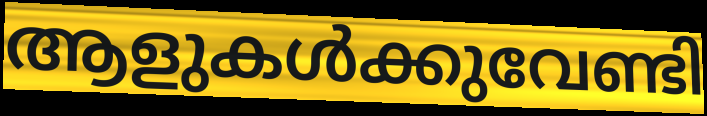
ആളുകൾക്കുവേണ്ടി